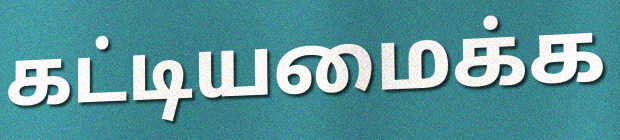
கட்டியமைக்க